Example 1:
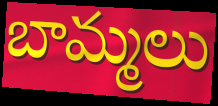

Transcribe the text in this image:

బామ్మలు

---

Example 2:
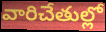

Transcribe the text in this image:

వారిచేతుల్లో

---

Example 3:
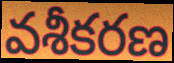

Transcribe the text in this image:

వశీకరణ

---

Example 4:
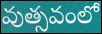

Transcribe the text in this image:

వుత్సవంలో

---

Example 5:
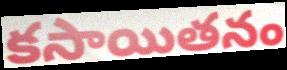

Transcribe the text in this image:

కసాయితనం